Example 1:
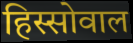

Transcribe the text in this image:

हिस्सोवाल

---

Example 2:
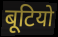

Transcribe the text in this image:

बूटियो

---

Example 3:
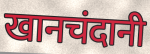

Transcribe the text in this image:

खानचंदानी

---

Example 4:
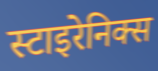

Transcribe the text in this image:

स्टाइरेनिक्स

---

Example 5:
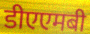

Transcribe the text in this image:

डीएएमबी